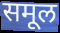
समूल